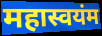
महास्वयंम